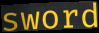
sword